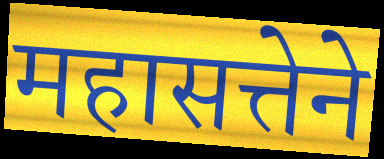
महासत्तेने